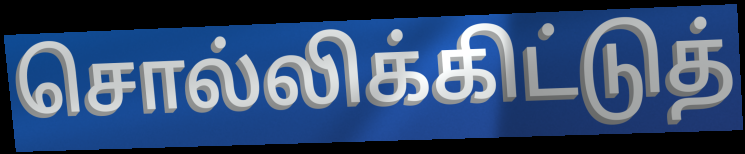
சொல்லிக்கிட்டுத்